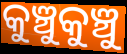
କୁଞ୍ଚୁକୁଞ୍ଚୁ